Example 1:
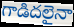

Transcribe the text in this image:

గాడిదలైనా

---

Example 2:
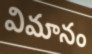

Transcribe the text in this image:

విమానం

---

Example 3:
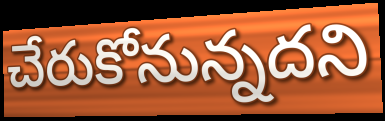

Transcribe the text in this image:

చేరుకోనున్నదని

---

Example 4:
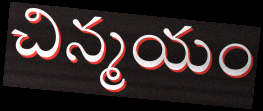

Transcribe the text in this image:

చిన్మయం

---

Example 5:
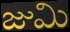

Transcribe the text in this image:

జుమి